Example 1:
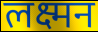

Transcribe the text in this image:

लक्ष्मन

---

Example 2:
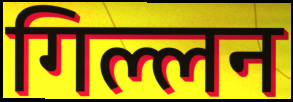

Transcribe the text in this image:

गिल्लन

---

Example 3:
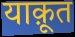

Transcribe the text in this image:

याक़ूत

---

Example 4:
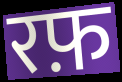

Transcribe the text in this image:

रफ़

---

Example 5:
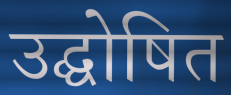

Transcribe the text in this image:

उद्घोषित